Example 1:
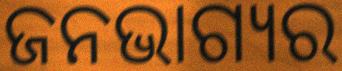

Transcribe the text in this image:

ଜନଭାଗ୍ୟର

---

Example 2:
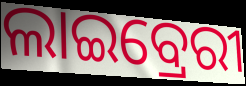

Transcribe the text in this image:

ଲାଇବ୍ରେରୀ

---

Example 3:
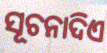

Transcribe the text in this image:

ସୂଚନାଦିଏ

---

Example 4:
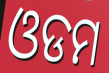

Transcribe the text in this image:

ଓଡମ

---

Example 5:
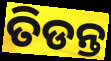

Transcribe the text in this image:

ତିଡନ୍ତ